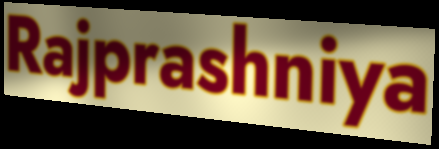
Rajprashniya